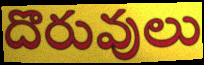
దొరువులు